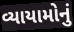
વ્યાયામોનું